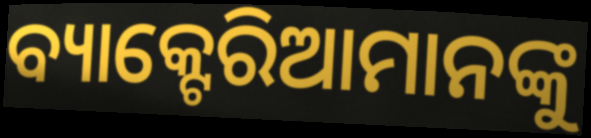
ବ୍ୟାକ୍ଟେରିଆମାନଙ୍କୁ